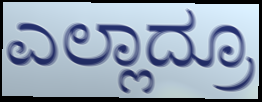
ಎಲ್ಲಾದ್ರೂ